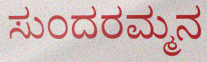
ಸುಂದರಮ್ಮನ